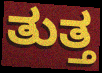
ತುತ್ತ